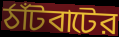
ঠাঁটবাটের